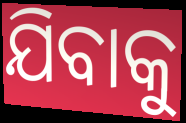
ଯିବାକୁ